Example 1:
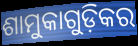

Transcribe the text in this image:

ଶାମୁକାଗୁଡ଼ିକର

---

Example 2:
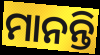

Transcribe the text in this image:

ମାନନ୍ତି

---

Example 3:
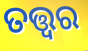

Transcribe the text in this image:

ତତ୍ତ୍ଵର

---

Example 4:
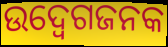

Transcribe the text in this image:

ଉଦ୍ବେଗଜନକ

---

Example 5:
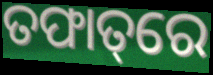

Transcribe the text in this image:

ତଫାତ୍‌ରେ